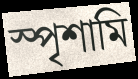
স্পৃশামি